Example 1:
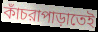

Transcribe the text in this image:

কাঁচরাপাড়াতেই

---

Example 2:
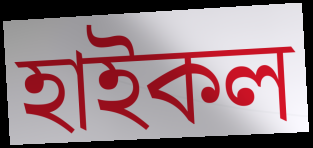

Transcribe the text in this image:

হাইকল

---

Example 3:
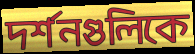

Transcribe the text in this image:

দর্শনগুলিকে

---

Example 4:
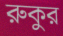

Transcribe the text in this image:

রুকুর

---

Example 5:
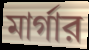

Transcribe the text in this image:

মার্গার